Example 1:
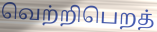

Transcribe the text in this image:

வெற்றிபெறத்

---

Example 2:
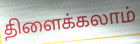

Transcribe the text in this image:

திளைக்கலாம்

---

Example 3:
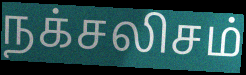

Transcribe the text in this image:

நக்சலிசம்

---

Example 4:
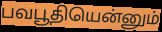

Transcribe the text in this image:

பவபூதியென்னும்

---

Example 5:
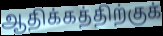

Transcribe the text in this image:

ஆதிக்கத்திற்குக்